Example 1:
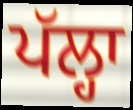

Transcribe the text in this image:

ਪੱਲ੍ਹਾ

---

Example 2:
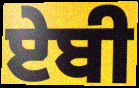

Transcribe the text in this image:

ਏਬੀ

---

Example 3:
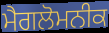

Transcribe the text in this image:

ਮੈਗਲੋਮਨੀਕ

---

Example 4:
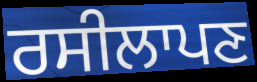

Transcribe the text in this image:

ਰਸੀਲਾਪਣ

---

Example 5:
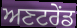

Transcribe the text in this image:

ਅਣਟਰੇਂਡ